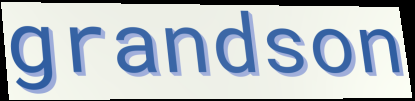
grandson